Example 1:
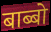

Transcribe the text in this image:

बाब्बो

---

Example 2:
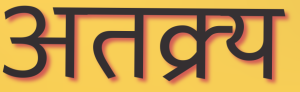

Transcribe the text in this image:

अतक्र्य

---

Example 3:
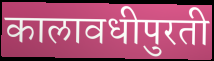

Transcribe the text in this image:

कालावधीपुरती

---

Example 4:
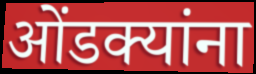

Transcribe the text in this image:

ओंडक्यांना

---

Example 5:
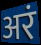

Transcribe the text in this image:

अरं